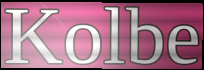
Kolbe